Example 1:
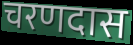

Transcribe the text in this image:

चरणदास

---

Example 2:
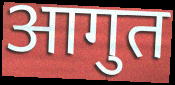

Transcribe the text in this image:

आगुत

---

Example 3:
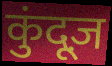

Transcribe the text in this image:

कुंदूज़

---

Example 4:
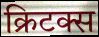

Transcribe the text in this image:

क्रिटक्स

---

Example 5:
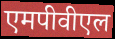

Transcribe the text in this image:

एमपीवीएल